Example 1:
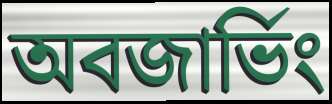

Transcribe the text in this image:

অবজার্ভিং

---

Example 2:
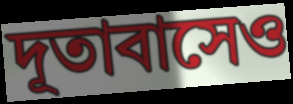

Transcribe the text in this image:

দূতাবাসেও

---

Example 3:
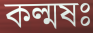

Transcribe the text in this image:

কল্মষঃ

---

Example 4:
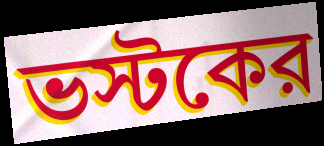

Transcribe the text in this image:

ভস্টকের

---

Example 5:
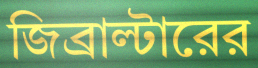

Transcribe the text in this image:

জিব্রাল্টারের